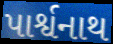
પાર્શ્વનાથ